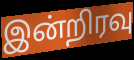
இன்றிரவு